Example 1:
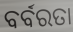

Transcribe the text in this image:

ବର୍ବରତା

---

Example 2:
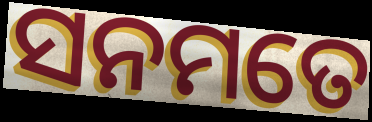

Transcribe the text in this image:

ସନମତେ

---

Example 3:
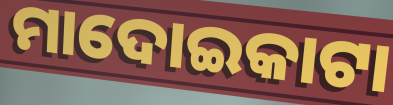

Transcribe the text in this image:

ମାଦୋଇକାଟା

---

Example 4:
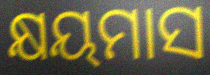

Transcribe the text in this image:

କ୍ଷୟମାସ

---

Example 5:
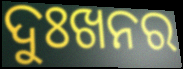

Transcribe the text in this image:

ଦୁଃଖନର